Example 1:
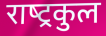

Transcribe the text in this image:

राष्ट्रकुल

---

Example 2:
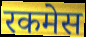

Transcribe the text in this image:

रकमेस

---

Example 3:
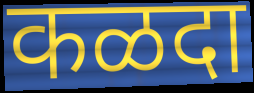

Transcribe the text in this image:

कळदा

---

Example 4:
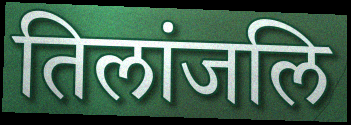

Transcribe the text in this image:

तिलांजलि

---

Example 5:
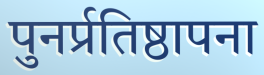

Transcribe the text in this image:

पुनर्प्रतिष्ठापना